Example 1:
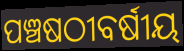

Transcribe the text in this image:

ପଞ୍ଚଷଠୀବର୍ଷୀୟ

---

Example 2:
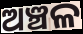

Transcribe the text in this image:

ଅଞ୍ଚଳ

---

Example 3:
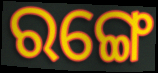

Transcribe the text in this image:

ରଙ୍ଗେ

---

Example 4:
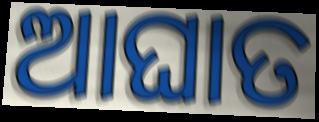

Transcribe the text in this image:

ଆଘାତ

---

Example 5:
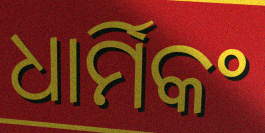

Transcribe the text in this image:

ଧାର୍ମିକଂ